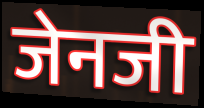
जेनजी